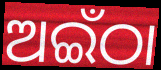
ଅଇଁଠା